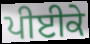
ਪੀਈਕੇ